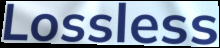
Lossless